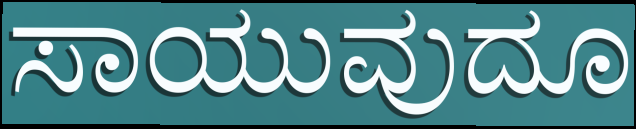
ಸಾಯುವುದೂ